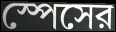
স্পেসের